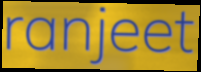
ranjeet